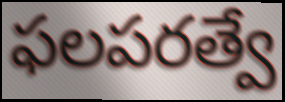
ఫలపరత్వే